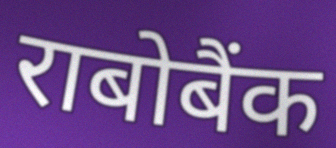
राबोबैंक